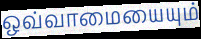
ஒவ்வாமையையும்